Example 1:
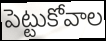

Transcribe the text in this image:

పెట్టుకోవాల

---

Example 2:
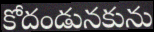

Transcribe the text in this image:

కోదండునకును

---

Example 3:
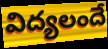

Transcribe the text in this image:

విద్యలందే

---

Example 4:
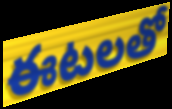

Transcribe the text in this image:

ఈటలతో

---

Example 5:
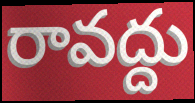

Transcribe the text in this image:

రావద్దు